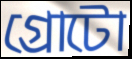
গ্রোটো